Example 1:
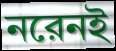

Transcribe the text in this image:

নরেনই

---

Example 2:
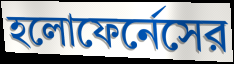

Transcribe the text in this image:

হলোফের্নেসের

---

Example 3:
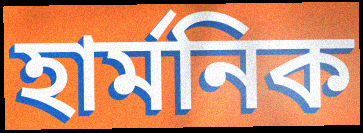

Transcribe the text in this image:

হার্মনিক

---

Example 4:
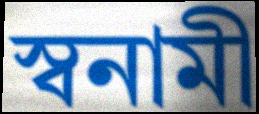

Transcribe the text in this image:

স্বনামী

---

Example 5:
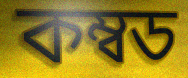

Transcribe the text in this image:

কম্বড